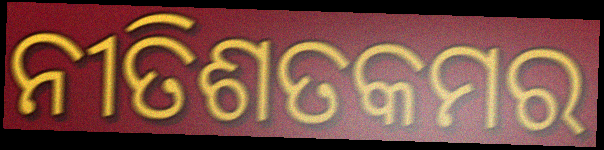
ନୀତିଶତକମର